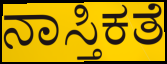
ನಾಸ್ತಿಕತೆ